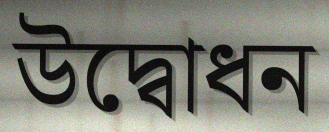
উদ্বোধন